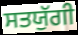
ਸਤਯੁੱਗੀ